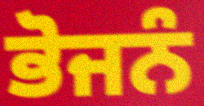
ਭੋਜਨੰ